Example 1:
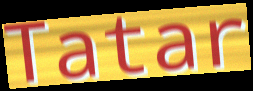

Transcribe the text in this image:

Tatar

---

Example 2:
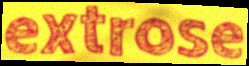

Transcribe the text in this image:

extrose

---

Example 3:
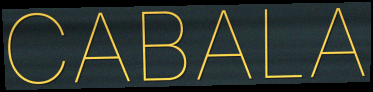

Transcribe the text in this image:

CABALA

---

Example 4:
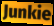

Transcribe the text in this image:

Junkie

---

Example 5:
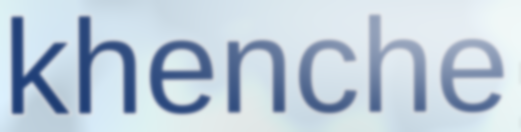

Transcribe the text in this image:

khenche